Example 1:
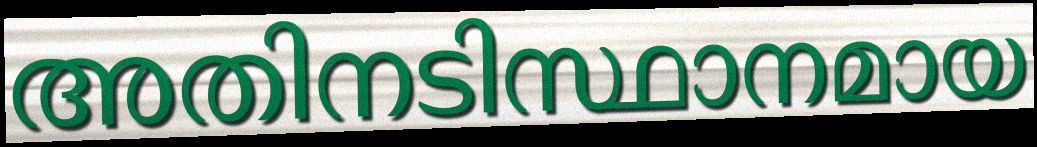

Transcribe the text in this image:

അതിനടിസ്ഥാനമായ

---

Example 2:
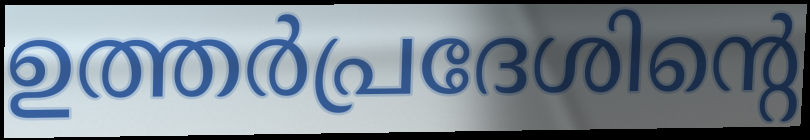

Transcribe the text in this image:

ഉത്തർപ്രദേശിന്റെ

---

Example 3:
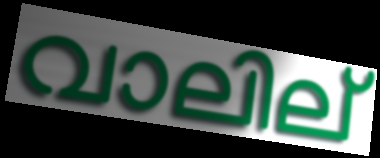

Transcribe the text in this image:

വാലില്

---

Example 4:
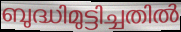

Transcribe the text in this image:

ബുദ്ധിമുട്ടിച്ചതിൽ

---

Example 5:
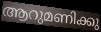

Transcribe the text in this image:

ആറുമണിക്കു